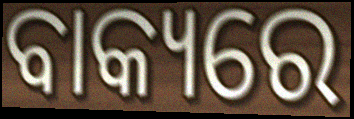
ବାକ୍ୟରେ